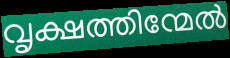
വൃക്ഷത്തിന്മേൽ